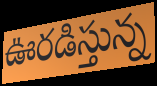
ఊరడిస్తున్న